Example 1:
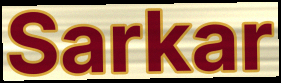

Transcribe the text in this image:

Sarkar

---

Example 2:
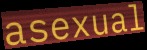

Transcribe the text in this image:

asexual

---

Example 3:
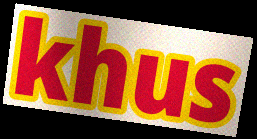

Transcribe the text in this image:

khus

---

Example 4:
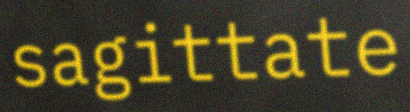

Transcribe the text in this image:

sagittate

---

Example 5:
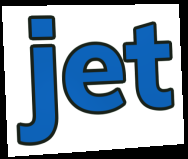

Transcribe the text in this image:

jet